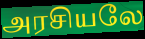
அரசியலே